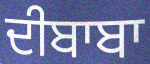
ਦੀਬਾਬਾ